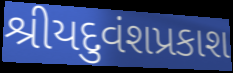
શ્રીયદુવંશપ્રકાશ